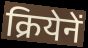
क्रियेनें